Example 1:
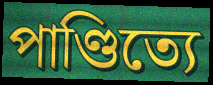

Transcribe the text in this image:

পাণ্ডিত্যে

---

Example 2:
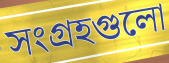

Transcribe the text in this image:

সংগ্রহগুলো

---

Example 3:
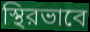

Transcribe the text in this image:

স্থিরভাবে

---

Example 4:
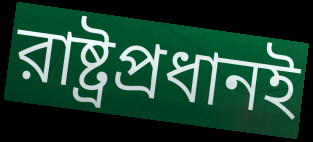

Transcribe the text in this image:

রাষ্ট্রপ্রধানই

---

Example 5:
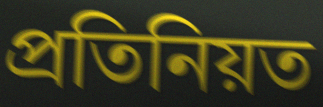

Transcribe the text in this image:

প্রতিনিয়ত